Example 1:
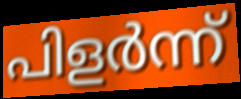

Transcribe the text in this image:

പിളർന്ന്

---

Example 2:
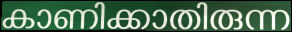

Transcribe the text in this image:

കാണിക്കാതിരുന്ന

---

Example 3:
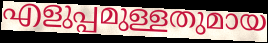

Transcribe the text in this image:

എളുപ്പമുള്ളതുമായ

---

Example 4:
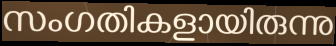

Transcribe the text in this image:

സംഗതികളായിരുന്നു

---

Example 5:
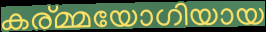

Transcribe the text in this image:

കര്മ്മയോഗിയായ